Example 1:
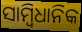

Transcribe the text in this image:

ସାମ୍ବିଧାନିକ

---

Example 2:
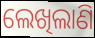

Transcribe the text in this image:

ଲେଖିଲାଣି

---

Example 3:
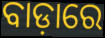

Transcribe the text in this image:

ବାଡ଼ାରେ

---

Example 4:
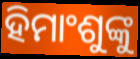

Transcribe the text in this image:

ହିମାଂଶୁଙ୍କୁ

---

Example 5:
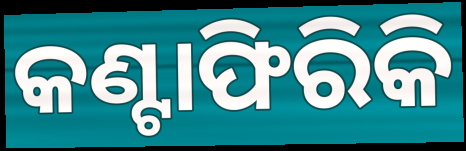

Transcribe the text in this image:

କଣ୍ଟାଫିରିକି